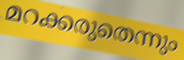
മറക്കരുതെന്നും